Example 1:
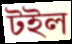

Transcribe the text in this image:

টইল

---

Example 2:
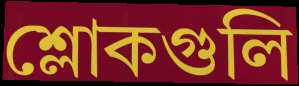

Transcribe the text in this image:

শ্লোকগুলি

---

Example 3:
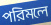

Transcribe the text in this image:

পরিমলে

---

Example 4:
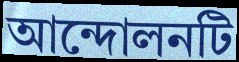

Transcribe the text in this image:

আন্দোলনটি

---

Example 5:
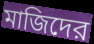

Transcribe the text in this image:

মাজিদের